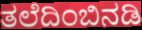
ತಲೆದಿಂಬಿನಡಿ